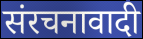
संरचनावादी